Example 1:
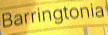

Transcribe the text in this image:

Barringtonia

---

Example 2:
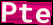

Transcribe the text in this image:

Pte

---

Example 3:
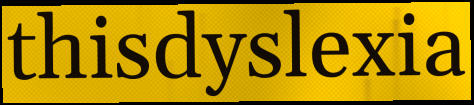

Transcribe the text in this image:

thisdyslexia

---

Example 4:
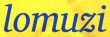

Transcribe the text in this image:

lomuzi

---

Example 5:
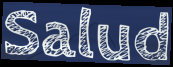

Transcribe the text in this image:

Salud